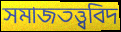
সমাজতত্ত্ববিদ